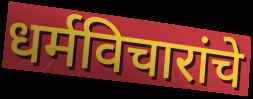
धर्मविचारांचे